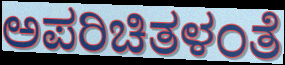
ಅಪರಿಚಿತಳಂತೆ